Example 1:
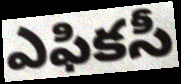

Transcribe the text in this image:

ఎఫికసీ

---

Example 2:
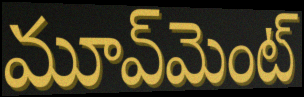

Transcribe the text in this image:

మూవ్‌మెంట్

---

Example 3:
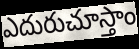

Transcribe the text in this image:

ఎదురుచూస్తాం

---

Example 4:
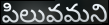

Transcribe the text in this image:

పిలువమని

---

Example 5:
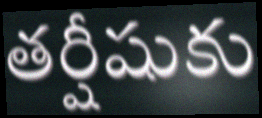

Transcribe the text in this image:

తర్షీషుకు